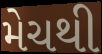
મેચથી